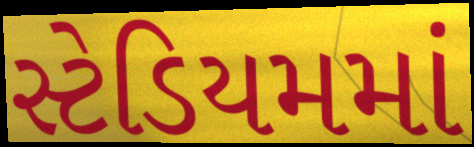
સ્ટેડિયમમાં